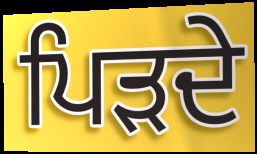
ਪਿੜਦੇ